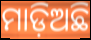
ମାଡ଼ିଅଛି